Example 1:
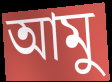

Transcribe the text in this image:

আমু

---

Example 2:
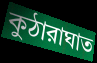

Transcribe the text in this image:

কুঠারাঘাত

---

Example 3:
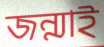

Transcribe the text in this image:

জন্মাই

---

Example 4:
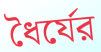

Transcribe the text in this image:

ধৈর্যের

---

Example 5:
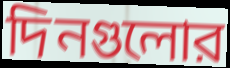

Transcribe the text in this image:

দিনগুলোর